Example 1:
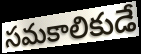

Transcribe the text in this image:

సమకాలికుడే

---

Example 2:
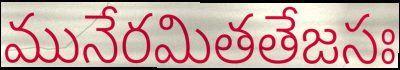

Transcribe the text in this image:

మునేరమితతేజసః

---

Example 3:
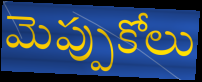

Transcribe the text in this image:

మెప్పుకోలు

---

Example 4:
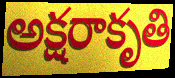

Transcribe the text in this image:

అక్షరాకృతి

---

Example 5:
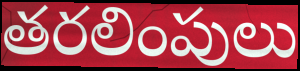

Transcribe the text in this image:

తరలింపులు